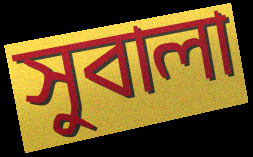
সুবালা